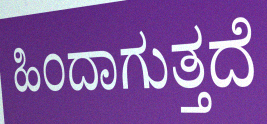
ಹಿಂದಾಗುತ್ತದೆ